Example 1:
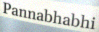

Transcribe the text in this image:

Pannabhabhi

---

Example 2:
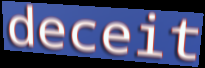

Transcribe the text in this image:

deceit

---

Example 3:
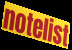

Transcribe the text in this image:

notelist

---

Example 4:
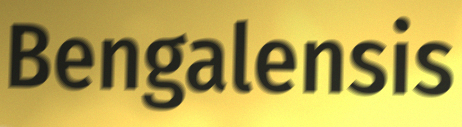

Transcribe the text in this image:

Bengalensis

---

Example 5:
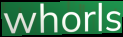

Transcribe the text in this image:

whorls